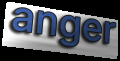
anger